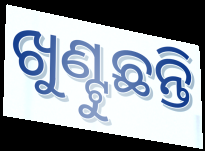
ଖୁଣ୍ଟୁଛନ୍ତି